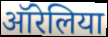
ऑरेलिया